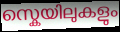
സ്കെയിലുകളും